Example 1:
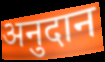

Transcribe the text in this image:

अनुदान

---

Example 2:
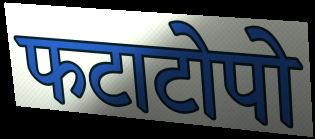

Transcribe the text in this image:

फटाटोपो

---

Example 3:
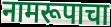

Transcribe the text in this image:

नामरूपाचा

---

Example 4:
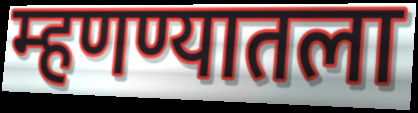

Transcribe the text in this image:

म्हणण्यातला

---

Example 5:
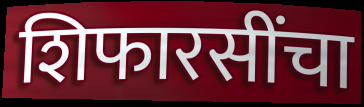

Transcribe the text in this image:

शिफारसींचा